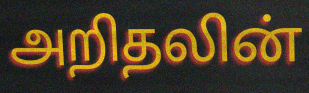
அறிதலின்